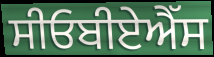
ਸੀਓਬੀਏਐੱਸ